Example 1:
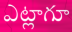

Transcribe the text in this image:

ఎట్లాగూ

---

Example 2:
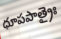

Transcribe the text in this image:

ధూపపాత్రైః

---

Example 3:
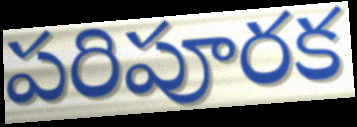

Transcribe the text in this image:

పరిపూరక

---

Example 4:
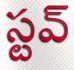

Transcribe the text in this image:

స్టవ్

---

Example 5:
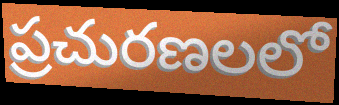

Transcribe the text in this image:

ప్రచురణలలో